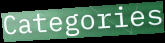
Categories